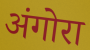
अंगोरा